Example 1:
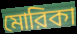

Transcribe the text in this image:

মোরিকা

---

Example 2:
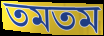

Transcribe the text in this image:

তমতম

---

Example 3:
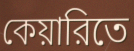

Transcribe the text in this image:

কেয়ারিতে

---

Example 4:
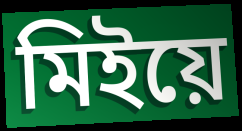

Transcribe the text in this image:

মিইয়ে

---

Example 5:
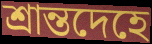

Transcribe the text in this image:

শ্রান্তদেহে